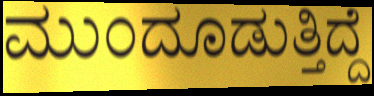
ಮುಂದೂಡುತ್ತಿದ್ದೆ